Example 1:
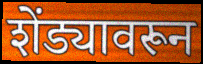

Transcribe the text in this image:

शेंड्यावरून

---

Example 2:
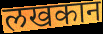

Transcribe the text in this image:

लखकान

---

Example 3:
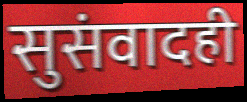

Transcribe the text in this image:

सुसंवादही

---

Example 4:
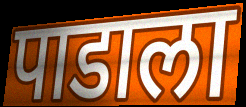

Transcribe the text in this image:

पाडाला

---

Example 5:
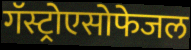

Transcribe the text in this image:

गॅस्ट्रोएसोफेजल